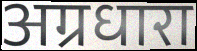
अग्रधारा